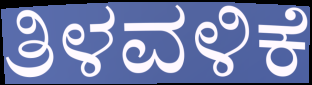
ತಿಳವಳಿಕೆ